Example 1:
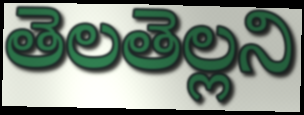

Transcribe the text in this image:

తెలతెల్లని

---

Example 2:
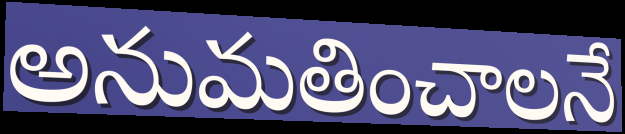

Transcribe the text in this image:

అనుమతించాలనే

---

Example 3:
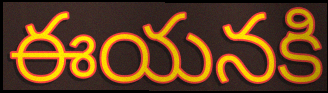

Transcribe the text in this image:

ఈయనకి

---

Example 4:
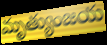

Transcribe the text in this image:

మృత్యుంజయ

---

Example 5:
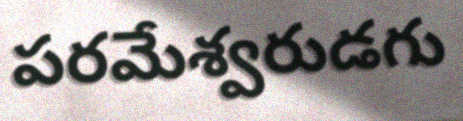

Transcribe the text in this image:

పరమేశ్వరుడగు